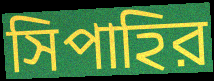
সিপাহির